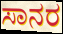
ಸಾನರ